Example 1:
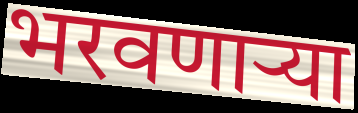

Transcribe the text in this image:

भरवणाऱ्या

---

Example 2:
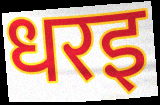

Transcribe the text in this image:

धरइ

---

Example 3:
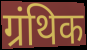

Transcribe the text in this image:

ग्रंथिक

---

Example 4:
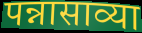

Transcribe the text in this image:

पन्नासाव्या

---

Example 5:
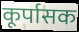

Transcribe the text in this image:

कूर्पासक